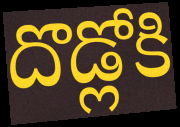
దొడ్లోకి